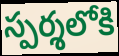
స్పర్శలోకి